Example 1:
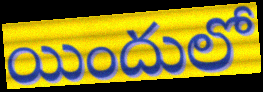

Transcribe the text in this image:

యిందులో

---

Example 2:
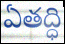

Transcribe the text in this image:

ఏతద్ధి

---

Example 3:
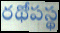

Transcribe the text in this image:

రథోపస్థ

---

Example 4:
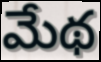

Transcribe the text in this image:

మేథ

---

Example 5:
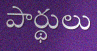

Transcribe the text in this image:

పార్థులు